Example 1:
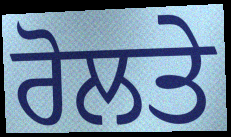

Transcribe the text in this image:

ਰੋਲਤੇ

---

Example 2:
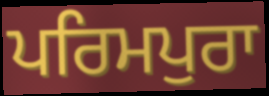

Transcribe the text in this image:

ਪਰਿਮਪੁਰਾ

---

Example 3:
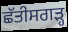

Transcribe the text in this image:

ਛੱਤੀਸਗਡ਼੍ਹ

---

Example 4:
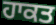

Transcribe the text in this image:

ਹਾਕਤ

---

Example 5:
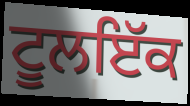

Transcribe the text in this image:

ਟੂਲਇੱਕ